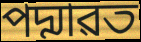
পদ্মাৱত